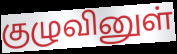
குழுவினுள்